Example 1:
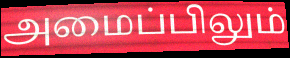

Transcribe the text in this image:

அமைப்பிலும்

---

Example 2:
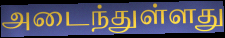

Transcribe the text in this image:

அடைந்துள்ளது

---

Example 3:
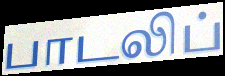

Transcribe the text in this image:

பாடலிப்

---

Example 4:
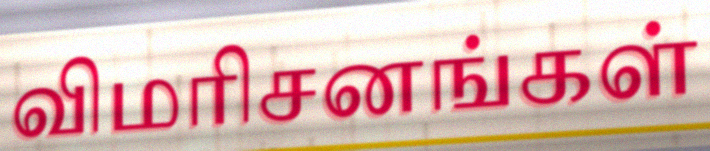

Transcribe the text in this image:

விமரிசனங்கள்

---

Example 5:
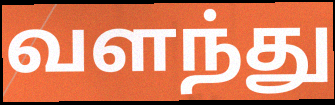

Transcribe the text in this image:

வளந்து